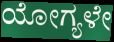
ಯೋಗ್ಯಳೇ